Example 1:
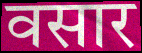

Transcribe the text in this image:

वसार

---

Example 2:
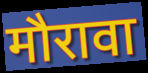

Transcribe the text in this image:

मौरावा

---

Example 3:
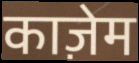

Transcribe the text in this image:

काज़ेम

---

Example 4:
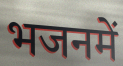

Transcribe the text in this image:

भजनमें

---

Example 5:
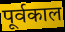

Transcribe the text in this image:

पूर्वकाल